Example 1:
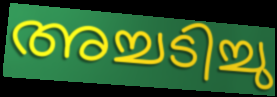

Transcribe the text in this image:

അച്ചടിച്ചു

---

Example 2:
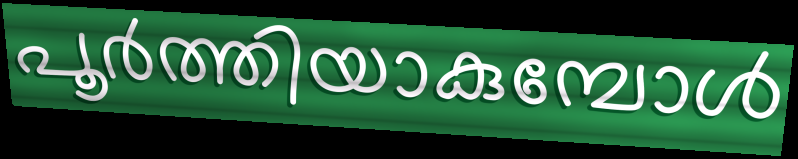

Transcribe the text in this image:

പൂർത്തിയാകുമ്പോൾ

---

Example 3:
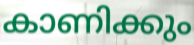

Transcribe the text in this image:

കാണിക്കും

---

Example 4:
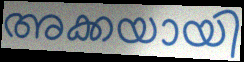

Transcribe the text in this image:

അക്കയായി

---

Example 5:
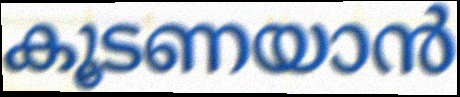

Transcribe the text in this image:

കൂടണയാൻ